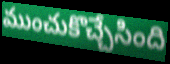
ముంచుకొచ్చేసింది